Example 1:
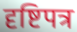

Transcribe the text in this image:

दृष्टिपत्र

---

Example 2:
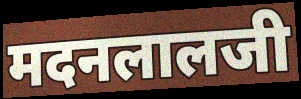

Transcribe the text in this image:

मदनलालजी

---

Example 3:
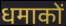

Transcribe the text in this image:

धमाकों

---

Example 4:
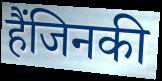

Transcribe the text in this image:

हैंजिनकी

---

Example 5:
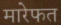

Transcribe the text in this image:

मारेफत